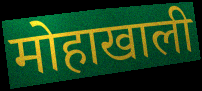
मोहाखाली